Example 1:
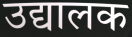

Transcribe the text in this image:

उद्यालक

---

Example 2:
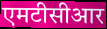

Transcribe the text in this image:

एमटीसीआर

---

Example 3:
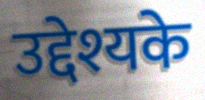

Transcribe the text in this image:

उद्देश्यके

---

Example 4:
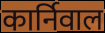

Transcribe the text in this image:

कार्निवाल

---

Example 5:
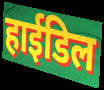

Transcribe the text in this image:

हाईडिल